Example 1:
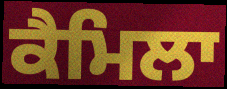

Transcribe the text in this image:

ਕੈਮਿਲਾ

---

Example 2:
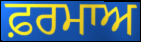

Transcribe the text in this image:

ਫ਼ਰਮਾਅ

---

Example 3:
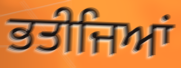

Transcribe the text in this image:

ਭਤੀਜਿਆਂ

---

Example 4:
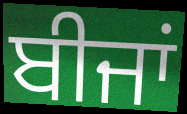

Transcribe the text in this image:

ਬੀਜਾਂ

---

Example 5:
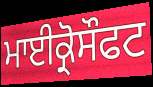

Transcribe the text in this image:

ਮਾਈਕ੍ਰੋਸੌਫਟ